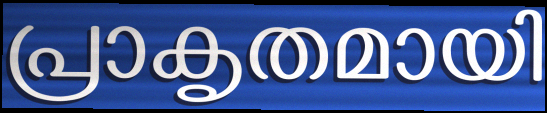
പ്രാകൃതമായി